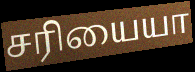
சரியையா